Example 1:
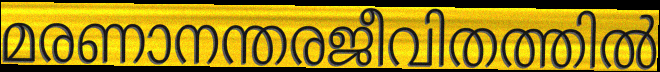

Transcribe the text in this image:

മരണാനന്തരജീവിതത്തിൽ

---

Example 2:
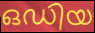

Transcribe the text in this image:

ഒഡിയ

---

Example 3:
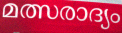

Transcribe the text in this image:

മത്സരാദ്യം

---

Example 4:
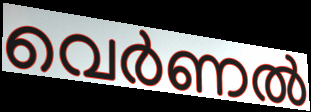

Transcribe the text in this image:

വെർണൽ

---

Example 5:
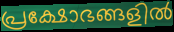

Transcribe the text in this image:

പ്രക്ഷോഭങ്ങളിൽ